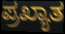
ಪ್ರಖ್ಯಾತ